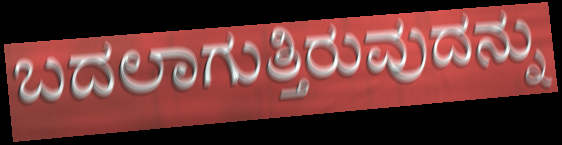
ಬದಲಾಗುತ್ತಿರುವುದನ್ನು